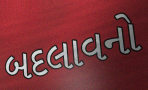
બદલાવનો